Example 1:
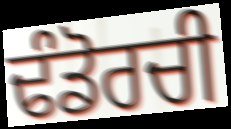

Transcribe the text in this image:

ਢੰਡੋਰਚੀ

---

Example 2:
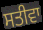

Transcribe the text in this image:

ਸਤੀਵਾ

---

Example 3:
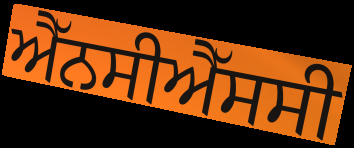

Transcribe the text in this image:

ਐੱਨਸੀਐੱਸਸੀ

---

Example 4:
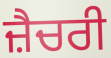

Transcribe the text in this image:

ਜ਼ੈਚਰੀ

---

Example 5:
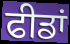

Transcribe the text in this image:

ਫੀਡਾਂ